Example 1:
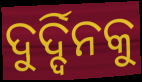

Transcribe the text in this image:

ଦୁର୍ଦ୍ଦିନକୁ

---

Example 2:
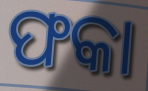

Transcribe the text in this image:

ଫକା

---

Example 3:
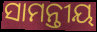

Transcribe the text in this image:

ସାମନ୍ତୀୟ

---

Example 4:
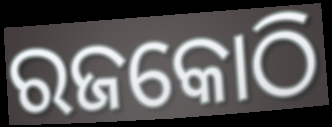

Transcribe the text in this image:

ରଜକୋଠି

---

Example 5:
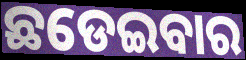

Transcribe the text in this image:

ଛଡେଇବାର